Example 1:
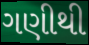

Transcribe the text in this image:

ગણીથી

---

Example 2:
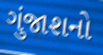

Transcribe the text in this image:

ગુંજાશનો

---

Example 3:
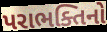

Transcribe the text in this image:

પરાભક્તિનો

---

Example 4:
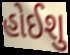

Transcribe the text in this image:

હોઈશુ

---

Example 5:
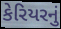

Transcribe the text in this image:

કેરિયરનું